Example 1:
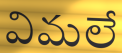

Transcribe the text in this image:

విమలే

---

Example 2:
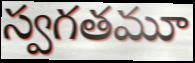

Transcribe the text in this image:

స్వగతమూ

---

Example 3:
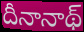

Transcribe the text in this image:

దీనానాథ్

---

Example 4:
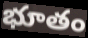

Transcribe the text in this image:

భూతం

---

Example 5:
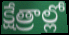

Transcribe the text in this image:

క్షేత్రాల్లో